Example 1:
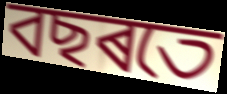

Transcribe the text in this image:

বছৰতে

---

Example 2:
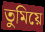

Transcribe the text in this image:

তুমিয়ে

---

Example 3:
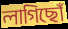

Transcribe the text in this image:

লাগিছোঁ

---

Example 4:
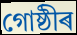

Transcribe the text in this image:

গোষ্ঠীৰ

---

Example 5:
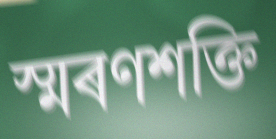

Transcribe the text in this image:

স্মৰণশক্তি